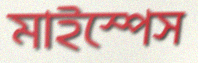
মাইস্পেস